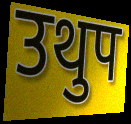
उथुप